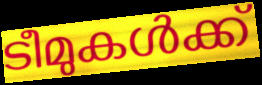
ടീമുകൾക്ക്